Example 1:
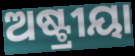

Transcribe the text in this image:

ଅଷ୍ଟ୍ରୀୟା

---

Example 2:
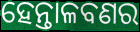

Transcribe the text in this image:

ହେନ୍ତାଳବଣର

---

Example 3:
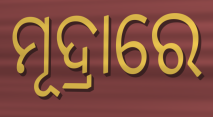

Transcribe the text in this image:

ମୂଦ୍ରାରେ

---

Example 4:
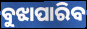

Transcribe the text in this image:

ବୁଝାପାରିବ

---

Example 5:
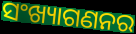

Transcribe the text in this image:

ସଂଖ୍ୟାଗଣନର